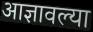
आज्ञावल्या